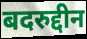
बदरुद्दीन